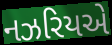
નઝરિયએ